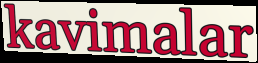
kavimalar